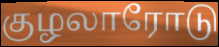
குழலாரோடு